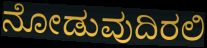
ನೋಡುವುದಿರಲಿ